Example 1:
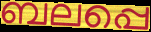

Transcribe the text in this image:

ബലപ്പെ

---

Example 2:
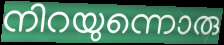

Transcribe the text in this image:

നിറയുന്നൊരു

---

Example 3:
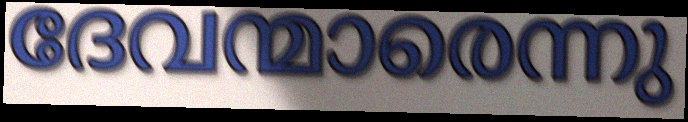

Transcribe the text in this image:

ദേവന്മാരെന്നു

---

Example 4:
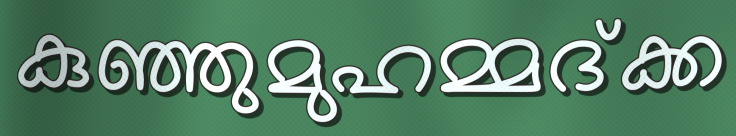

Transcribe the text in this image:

കുഞ്ഞുമുഹമ്മദ്ക്ക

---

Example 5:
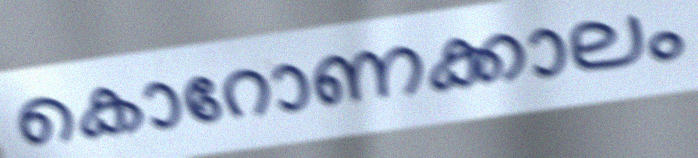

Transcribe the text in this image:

കൊറോണക്കാലം